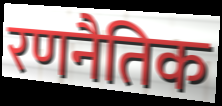
रणनैतिक